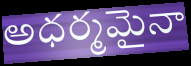
అధర్మమైనా